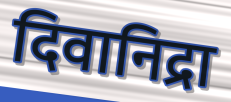
दिवानिद्रा